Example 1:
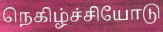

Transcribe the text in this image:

நெகிழ்ச்சியோடு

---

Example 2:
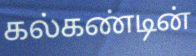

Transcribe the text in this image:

கல்கண்டின்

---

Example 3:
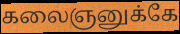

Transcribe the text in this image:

கலைஞனுக்கே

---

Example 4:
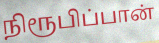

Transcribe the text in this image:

நிரூபிப்பான்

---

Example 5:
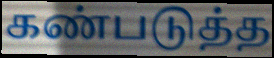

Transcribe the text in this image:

கண்படுத்த